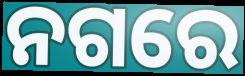
ନଗରେ